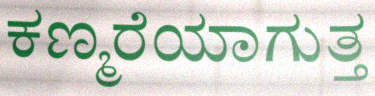
ಕಣ್ಮರೆಯಾಗುತ್ತ